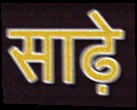
साढ़े